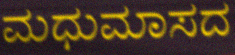
ಮಧುಮಾಸದ